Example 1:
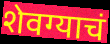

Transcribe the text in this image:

शेवग्याचं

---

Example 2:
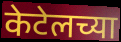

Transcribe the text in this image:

केटेलच्या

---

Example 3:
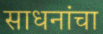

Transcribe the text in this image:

साधनांचा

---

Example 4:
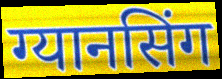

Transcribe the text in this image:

ग्यानसिंग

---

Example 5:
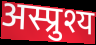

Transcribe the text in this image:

अस्प्रुश्य